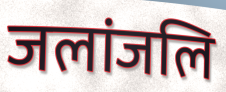
जलांजलि